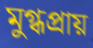
মুগ্ধপ্রায়